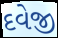
દવેજી